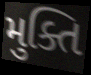
મુક્તિ